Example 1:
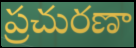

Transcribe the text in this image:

ప్రచురణా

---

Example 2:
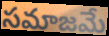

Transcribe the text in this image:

సమాజమే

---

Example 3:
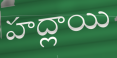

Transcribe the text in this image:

హద్లాయి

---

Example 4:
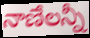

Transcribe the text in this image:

నాణేలన్నీ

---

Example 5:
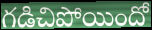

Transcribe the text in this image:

గడిచిపోయిందో